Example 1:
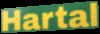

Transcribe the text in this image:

Hartal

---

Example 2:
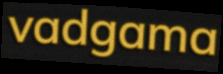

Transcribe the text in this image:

vadgama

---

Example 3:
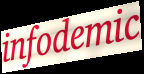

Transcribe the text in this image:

infodemic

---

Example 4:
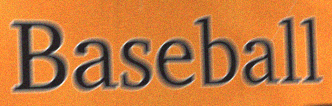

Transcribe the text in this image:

Baseball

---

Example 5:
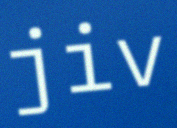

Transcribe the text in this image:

jiv